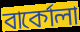
বার্কোলা